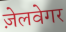
ज़ेलवेगर